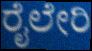
ರೈಲೇರಿ